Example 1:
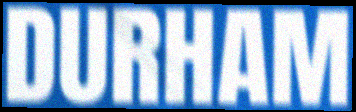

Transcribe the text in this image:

DURHAM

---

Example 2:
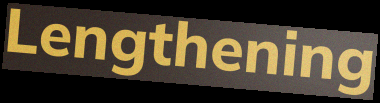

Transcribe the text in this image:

Lengthening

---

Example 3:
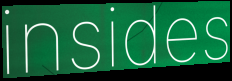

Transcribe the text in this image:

insides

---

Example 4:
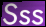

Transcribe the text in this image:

Sss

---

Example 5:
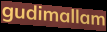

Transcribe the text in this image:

gudimallam